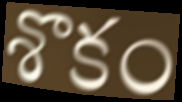
శొకం